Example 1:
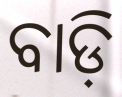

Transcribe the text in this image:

ବାଡ଼ି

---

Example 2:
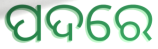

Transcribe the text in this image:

ପଦରେ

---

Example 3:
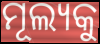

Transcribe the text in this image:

ମୂଲ୍ୟକୁ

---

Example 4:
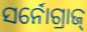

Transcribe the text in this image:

ସର୍ନୋଗ୍ରାଜ୍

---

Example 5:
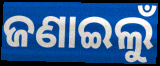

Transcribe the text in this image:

ଜଣାଇଲୁଁ